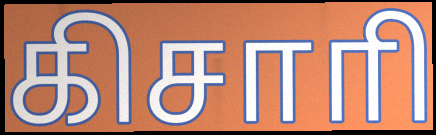
கிசாரி